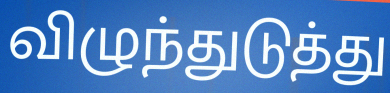
விழுந்துடுத்து